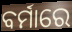
ବର୍ମାରେ